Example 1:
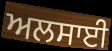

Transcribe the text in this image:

ਅਲਸਾਈ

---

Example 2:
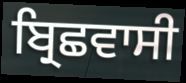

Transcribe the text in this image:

ਬ੍ਰਿਛਵਾਸੀ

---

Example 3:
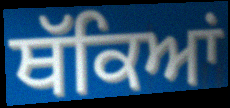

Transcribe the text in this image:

ਥੱਕਿਆਂ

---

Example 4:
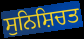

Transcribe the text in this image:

ਸੁਨਿਸ਼ਿਚਤ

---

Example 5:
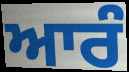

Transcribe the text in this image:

ਆਰੰ